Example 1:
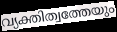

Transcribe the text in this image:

വ്യക്തിത്വത്തേയും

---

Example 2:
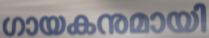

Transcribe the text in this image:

ഗായകനുമായി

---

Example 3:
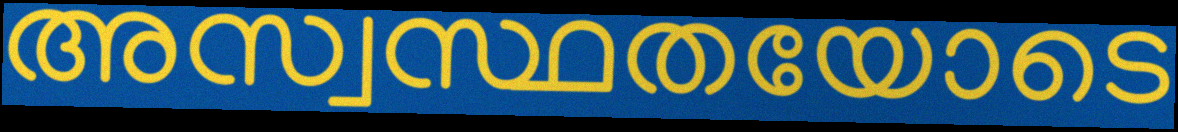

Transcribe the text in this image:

അസ്വസ്ഥതയോടെ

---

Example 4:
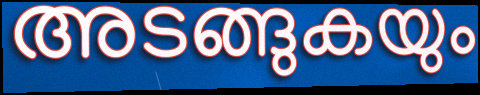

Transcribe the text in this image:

അടങ്ങുകയും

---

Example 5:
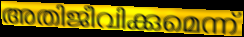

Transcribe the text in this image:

അതിജീവിക്കുമെന്ന്